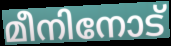
മീനിനോട്